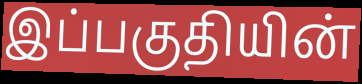
இப்பகுதியின்